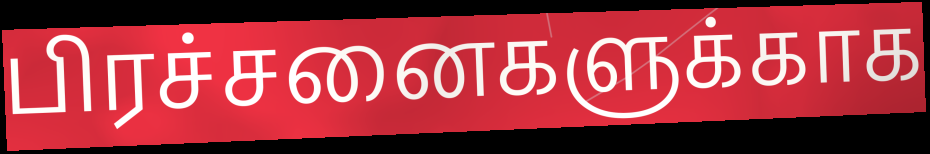
பிரச்சனைகளுக்காக